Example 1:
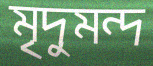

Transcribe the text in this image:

মৃদুমন্দ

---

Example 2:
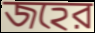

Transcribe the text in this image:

জহের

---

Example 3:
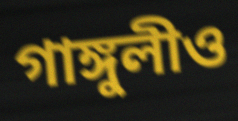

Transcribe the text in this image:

গাঙ্গুলীও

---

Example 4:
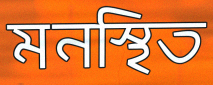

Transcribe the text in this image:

মনস্থিত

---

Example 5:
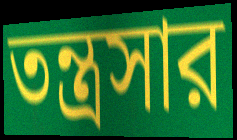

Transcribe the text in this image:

তন্ত্রসার